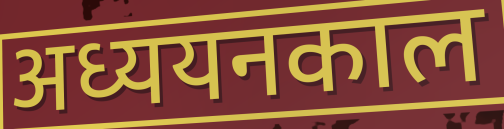
अध्ययनकाल